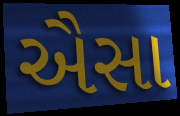
ઐસા